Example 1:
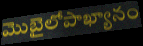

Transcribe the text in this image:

మొబైలోపాఖ్యానం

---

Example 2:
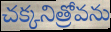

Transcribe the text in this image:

చక్కనిత్రోవను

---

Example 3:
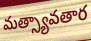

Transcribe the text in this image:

మత్స్యావతార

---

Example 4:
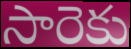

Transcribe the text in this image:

సారెకు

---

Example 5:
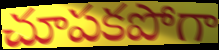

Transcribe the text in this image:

చూపకపోగా